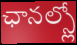
ఛానల్స్లో